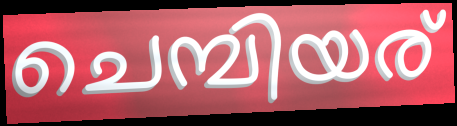
ചെമ്പിയര്